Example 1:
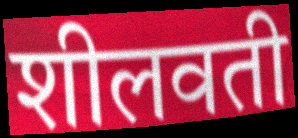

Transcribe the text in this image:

शीलवती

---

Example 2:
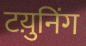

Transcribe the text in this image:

टय़ुनिंग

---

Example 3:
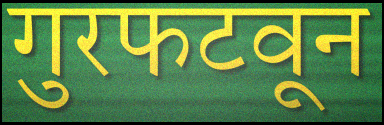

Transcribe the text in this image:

गुरफटवून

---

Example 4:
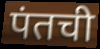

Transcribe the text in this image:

पंतची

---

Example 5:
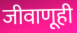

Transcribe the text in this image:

जीवाणूही